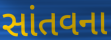
સાંતવના